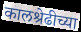
कालश्रेढीच्या